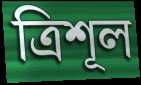
ত্ৰিশূল